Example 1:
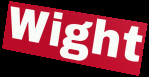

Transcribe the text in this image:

Wight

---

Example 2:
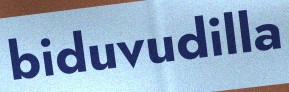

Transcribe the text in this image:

biduvudilla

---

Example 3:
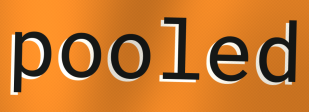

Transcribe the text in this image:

pooled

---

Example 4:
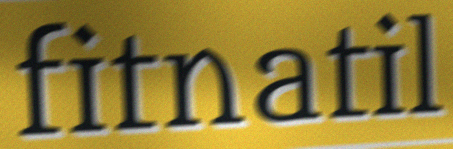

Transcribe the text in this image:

fitnatil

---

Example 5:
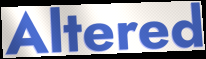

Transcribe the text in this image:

Altered